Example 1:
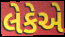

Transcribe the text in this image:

લેકેએ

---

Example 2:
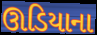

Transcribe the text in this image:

ઊડિયાના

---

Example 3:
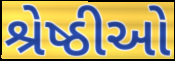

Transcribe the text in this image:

શ્રેષ્ઠીઓ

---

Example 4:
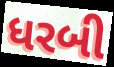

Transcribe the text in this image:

ધરબી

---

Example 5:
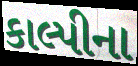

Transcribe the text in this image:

કાલ્પીના